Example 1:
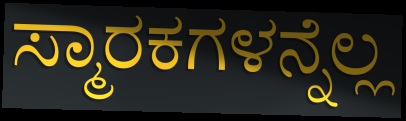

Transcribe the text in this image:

ಸ್ಮಾರಕಗಳನ್ನೆಲ್ಲ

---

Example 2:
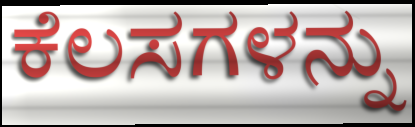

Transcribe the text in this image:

ಕೆಲಸಗಳನ್ನು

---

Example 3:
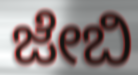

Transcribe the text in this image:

ಜೇಬಿ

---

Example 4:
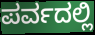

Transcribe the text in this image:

ಪರ್ವದಲ್ಲಿ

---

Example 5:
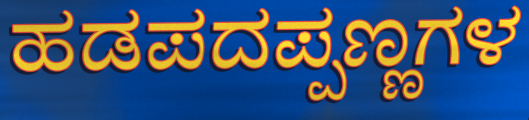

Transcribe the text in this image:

ಹಡಪದಪ್ಪಣ್ಣಗಳ